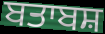
ਬਤਾਬਸ਼